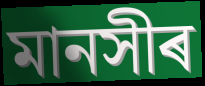
মানসীৰ